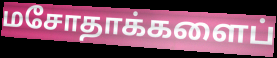
மசோதாக்களைப்